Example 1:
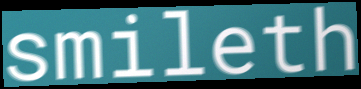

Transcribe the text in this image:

smileth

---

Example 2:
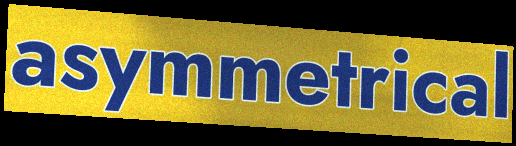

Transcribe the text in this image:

asymmetrical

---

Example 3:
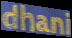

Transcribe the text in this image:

dhani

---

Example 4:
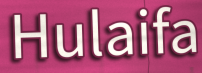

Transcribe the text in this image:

Hulaifa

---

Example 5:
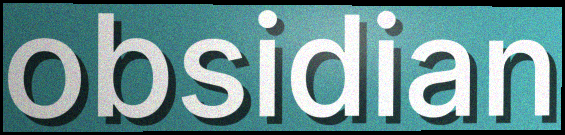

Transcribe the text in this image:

obsidian